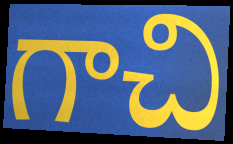
గాచి